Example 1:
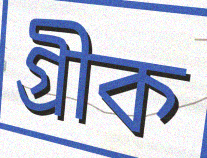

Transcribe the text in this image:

গ্ৰীক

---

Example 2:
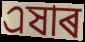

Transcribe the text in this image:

এষাৰ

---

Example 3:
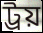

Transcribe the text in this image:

ট্ৰয়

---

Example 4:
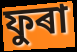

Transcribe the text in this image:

ফুৰা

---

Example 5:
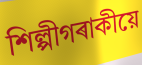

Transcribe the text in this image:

শিল্পীগৰাকীয়ে